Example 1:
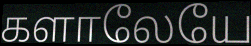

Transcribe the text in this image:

களாலேயே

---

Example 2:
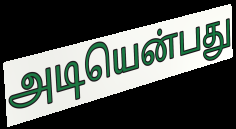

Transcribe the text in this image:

அடியென்பது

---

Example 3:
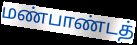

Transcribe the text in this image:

மண்பாண்டத்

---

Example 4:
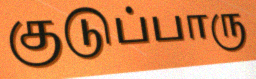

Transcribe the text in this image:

குடுப்பாரு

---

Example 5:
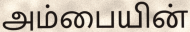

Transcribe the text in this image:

அம்பையின்